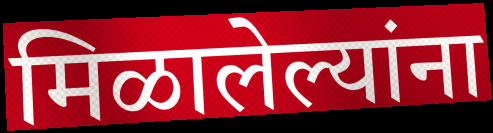
मिळालेल्यांना